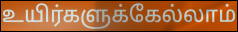
உயிர்களுக்கேல்லாம்